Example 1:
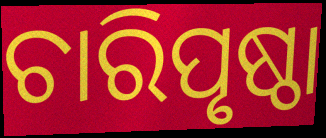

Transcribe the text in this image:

ଚାରିପୃଷ୍ଠା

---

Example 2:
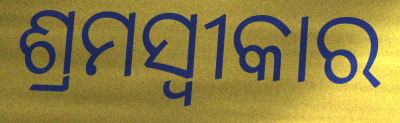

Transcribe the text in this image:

ଶ୍ରମସ୍ୱୀକାର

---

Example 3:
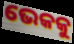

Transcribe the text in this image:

ଭେକକୁ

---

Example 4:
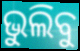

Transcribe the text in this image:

ଭୁଲିବୁ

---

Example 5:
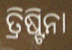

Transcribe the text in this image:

ତ୍ରିଷ୍ଟିନା